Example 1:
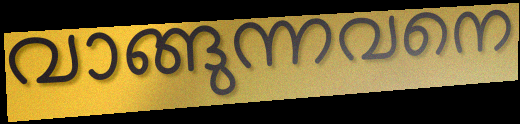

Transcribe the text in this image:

വാങ്ങുന്നവനെ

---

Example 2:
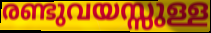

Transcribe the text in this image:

രണ്ടുവയസ്സുള്ള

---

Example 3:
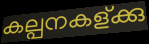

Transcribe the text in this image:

കല്പനകള്ക്കു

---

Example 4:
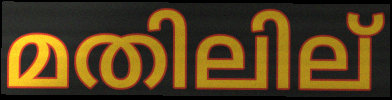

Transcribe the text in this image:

മതിലില്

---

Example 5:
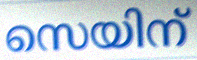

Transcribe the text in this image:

സെയിന്